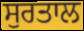
ਸੁਰਤਾਲ